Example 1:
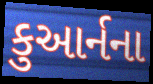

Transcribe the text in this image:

કુઆર્નના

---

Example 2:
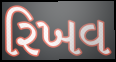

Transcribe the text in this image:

રિખવ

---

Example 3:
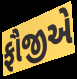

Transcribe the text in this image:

ફૌજીએ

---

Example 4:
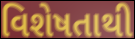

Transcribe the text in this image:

વિશેષતાથી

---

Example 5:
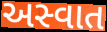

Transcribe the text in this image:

અસ્વાત